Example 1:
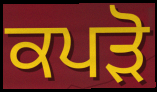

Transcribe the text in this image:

ਕਪੜੋ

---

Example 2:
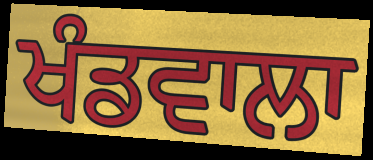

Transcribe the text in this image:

ਖੰਡਵਾਲਾ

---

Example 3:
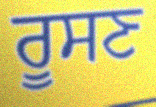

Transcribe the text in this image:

ਰੂਸਣ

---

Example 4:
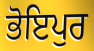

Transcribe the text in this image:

ਭੋਇਪੁਰ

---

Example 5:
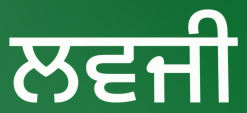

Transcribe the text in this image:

ਲਵਜੀ